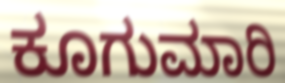
ಕೂಗುಮಾರಿ